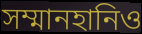
সম্মানহানিও